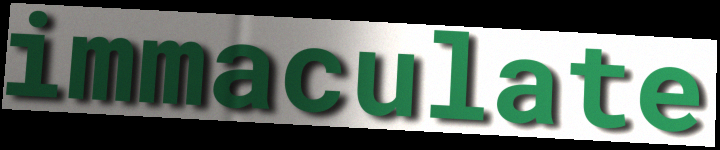
immaculate